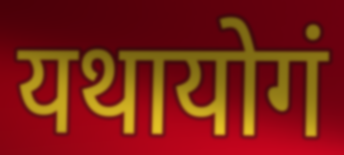
यथायोगं